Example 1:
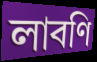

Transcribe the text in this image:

লাবণি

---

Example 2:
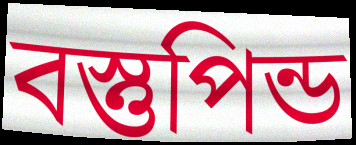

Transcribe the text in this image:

বস্তুপিন্ড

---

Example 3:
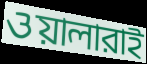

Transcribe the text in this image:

ওয়ালারাই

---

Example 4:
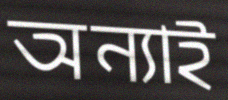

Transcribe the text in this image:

অন্যাই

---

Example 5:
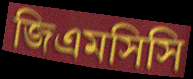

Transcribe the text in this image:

জিএমসিসি